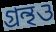
গ্রন্থও